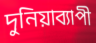
দুনিয়াব্যাপী